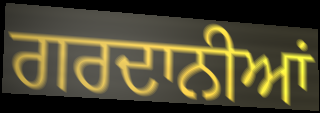
ਗਰਦਾਨੀਆਂ